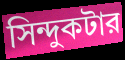
সিন্দুকটার